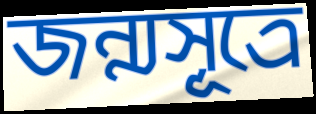
জন্মসূত্ৰে